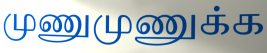
முணுமுணுக்க